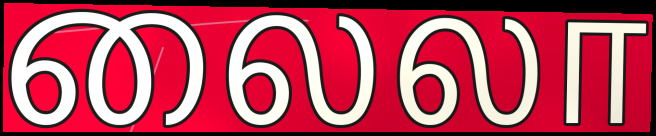
லைலா